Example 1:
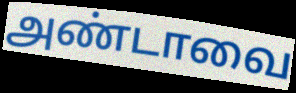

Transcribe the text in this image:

அண்டாவை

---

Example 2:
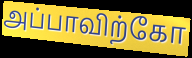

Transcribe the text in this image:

அப்பாவிற்கோ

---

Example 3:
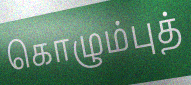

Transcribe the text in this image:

கொழும்புத்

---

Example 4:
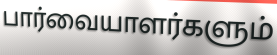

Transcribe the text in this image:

பார்வையாளர்களும்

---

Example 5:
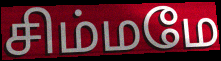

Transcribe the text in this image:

சிம்மமே